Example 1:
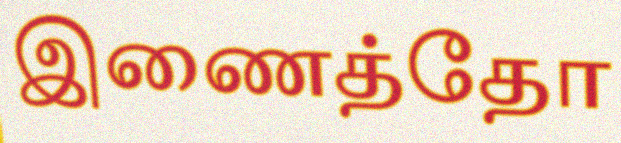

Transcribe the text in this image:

இணைத்தோ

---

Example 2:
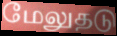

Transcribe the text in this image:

மேலுதடு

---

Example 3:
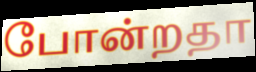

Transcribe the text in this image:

போன்றதா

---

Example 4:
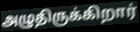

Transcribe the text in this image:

அழுதிருக்கிறார்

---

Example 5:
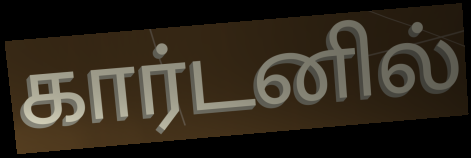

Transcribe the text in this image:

கார்டனில்